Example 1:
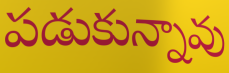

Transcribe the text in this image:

పడుకున్నావు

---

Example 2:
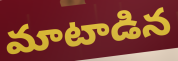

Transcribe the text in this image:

మాటాడిన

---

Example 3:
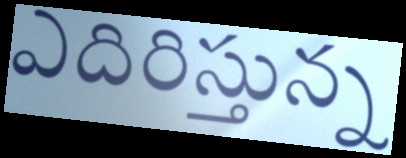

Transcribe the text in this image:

ఎదిరిస్తున్న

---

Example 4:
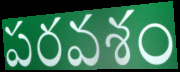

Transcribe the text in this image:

పరవశం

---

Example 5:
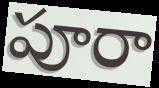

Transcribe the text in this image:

పూరా